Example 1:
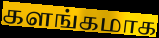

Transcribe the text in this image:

களங்கமாக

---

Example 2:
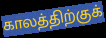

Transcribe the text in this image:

காலத்திற்குக்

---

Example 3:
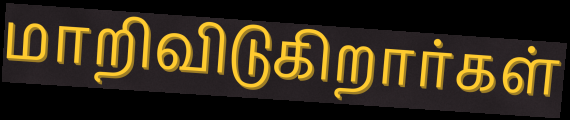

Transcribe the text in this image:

மாறிவிடுகிறார்கள்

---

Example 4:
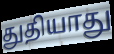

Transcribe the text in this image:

துதியாது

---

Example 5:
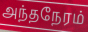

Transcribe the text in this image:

அந்தநேரம்